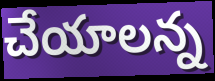
చేయాలన్న